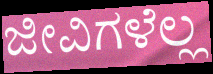
ಜೀವಿಗಳೆಲ್ಲ